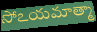
సోఽయమాత్మా